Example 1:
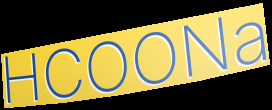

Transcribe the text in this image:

HCOONa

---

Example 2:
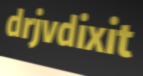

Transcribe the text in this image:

drjvdixit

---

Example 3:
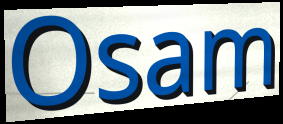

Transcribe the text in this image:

Osam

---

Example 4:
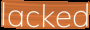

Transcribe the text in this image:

lacked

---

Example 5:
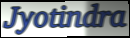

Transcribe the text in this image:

Jyotindra